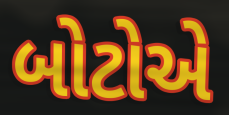
બોટોએ